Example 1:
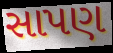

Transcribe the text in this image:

સાપણ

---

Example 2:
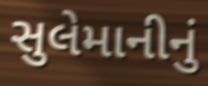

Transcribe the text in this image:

સુલેમાનીનું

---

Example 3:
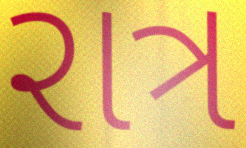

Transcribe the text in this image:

રાત્ર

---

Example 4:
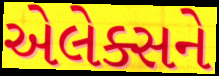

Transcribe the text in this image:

એલેક્સને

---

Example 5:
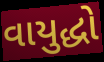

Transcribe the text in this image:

વાયુદ્ધો